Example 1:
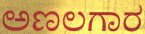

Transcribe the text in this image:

ಅಣಲಗಾರ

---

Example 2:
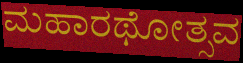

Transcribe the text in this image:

ಮಹಾರಥೋತ್ಸವ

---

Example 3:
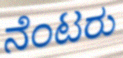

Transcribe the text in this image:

ನೆಂಟರು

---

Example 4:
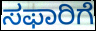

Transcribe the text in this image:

ಸಫಾರಿಗೆ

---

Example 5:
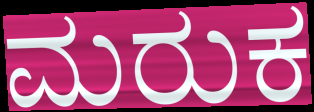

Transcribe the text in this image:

ಮರುಕ